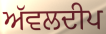
ਅੱਵਲਦੀਪ